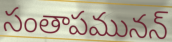
సంతాపమునన్